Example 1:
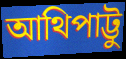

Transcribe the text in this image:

আথিপাট্টু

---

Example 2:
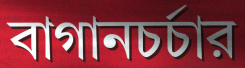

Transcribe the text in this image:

বাগানচর্চার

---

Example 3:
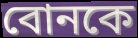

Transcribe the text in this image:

বোনকে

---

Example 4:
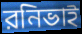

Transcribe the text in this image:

রনিভাই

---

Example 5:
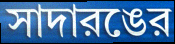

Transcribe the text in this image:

সাদারঙের